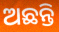
ଅଛନ୍ତି